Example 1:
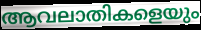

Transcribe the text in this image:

ആവലാതികളെയും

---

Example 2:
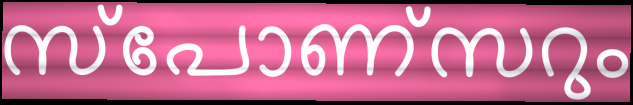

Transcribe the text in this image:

സ്പോണ്സറും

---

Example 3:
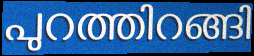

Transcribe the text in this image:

പുറത്തിറങ്ങി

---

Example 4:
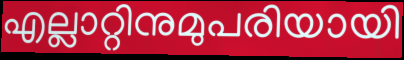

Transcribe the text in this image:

എല്ലാറ്റിനുമുപരിയായി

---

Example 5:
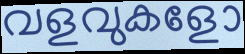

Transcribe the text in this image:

വളവുകളോ